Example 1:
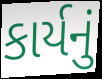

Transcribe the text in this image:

કાર્યનું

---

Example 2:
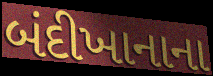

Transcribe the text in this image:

બંદીખાનાના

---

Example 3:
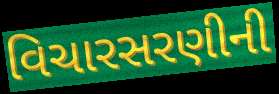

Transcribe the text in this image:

વિચારસરણીની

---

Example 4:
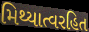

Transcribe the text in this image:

મિથ્યાત્વરહિત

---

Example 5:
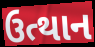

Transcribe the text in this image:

ઉત્થાન